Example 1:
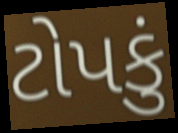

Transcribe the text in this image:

ટોપકું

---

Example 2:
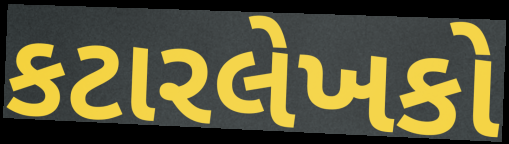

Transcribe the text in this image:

કટારલેખકો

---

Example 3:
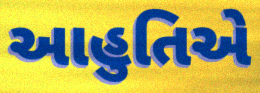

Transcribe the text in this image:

આહુતિએ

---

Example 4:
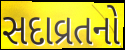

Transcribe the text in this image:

સદાવ્રતનો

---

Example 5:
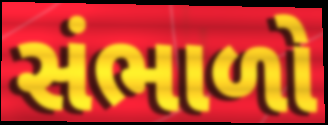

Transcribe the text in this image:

સંભાળો